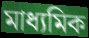
মাধ্যমিক